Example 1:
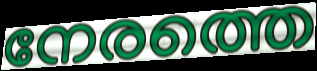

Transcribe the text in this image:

നേരത്തെ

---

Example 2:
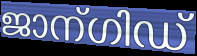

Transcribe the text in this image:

ജാന്ഗിഡ്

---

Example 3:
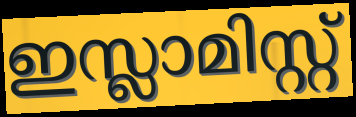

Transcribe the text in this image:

ഇസ്ലാമിസ്റ്റ്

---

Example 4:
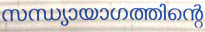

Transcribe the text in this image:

സന്ധ്യായാഗത്തിന്റെ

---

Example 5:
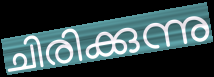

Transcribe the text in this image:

ചിരിക്കുന്നു